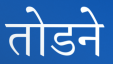
तोडने